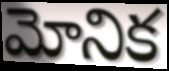
మోనిక